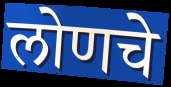
लोणचे